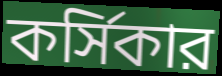
কর্সিকার